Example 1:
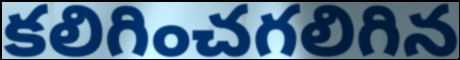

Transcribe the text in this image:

కలిగించగలిగిన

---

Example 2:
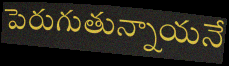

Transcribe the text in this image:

పెరుగుతున్నాయనే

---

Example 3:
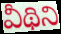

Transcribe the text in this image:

వీథిని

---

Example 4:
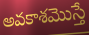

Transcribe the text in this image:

అవకాశమొస్తే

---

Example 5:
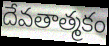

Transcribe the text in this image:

దేవతాత్మకం